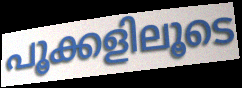
പൂക്കളിലൂടെ